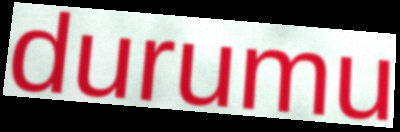
durumu